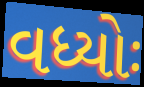
વધ્યોઃ